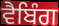
ਵੈਬਿੰਗ